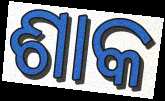
ଶାକ